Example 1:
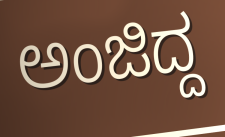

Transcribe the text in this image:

ಅಂಜಿದ್ದ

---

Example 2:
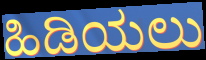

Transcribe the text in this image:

ಹಿಡಿಯಲು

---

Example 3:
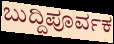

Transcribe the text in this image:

ಬುದ್ದಿಪೂರ್ವಕ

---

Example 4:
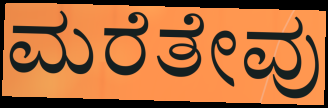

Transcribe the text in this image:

ಮರೆತೇವು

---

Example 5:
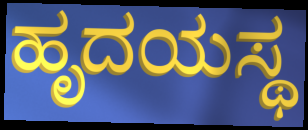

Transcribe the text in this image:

ಹೃದಯಸ್ಥ